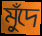
মুঁদে